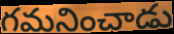
గమనించాడు